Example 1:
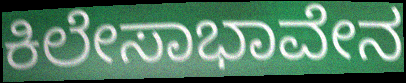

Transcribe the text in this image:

ಕಿಲೇಸಾಭಾವೇನ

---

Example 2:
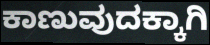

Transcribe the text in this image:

ಕಾಣುವುದಕ್ಕಾಗಿ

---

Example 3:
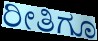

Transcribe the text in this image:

ರೀತಿಗೂ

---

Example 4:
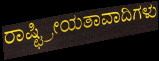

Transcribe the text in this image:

ರಾಷ್ಟ್ರೀಯತಾವಾದಿಗಳು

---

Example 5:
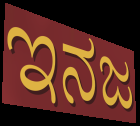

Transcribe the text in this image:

ಇನಜ